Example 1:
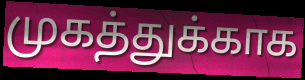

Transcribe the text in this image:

முகத்துக்காக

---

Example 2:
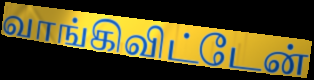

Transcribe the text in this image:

வாங்கிவிட்டேன்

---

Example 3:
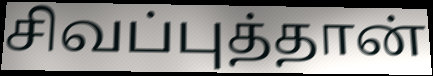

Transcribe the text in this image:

சிவப்புத்தான்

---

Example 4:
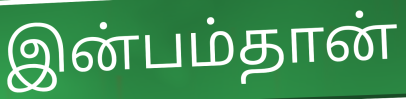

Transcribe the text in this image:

இன்பம்தான்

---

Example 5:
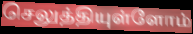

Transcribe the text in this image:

செலுத்தியுள்ளோம்